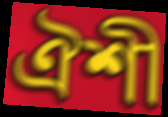
ঐশী